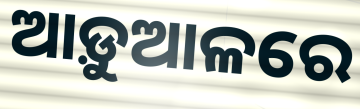
ଆଡ଼ୁଆଳରେ